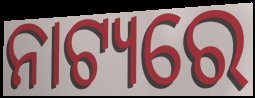
ନାଟ୍ୟରେ